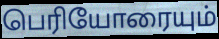
பெரியோரையும்